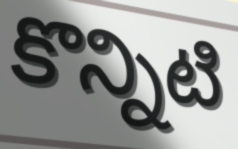
కొన్నిటి